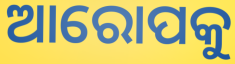
ଆରୋପକୁ